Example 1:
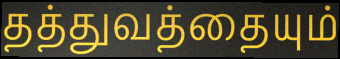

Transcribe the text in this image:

தத்துவத்தையும்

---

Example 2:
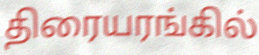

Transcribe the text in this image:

திரையரங்கில்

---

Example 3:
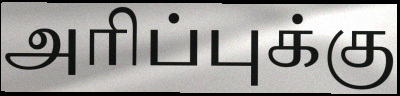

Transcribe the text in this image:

அரிப்புக்கு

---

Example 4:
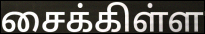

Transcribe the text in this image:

சைக்கிள்ள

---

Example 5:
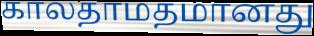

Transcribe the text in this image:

காலதாமதமானது